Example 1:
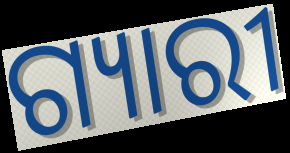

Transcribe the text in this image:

ଗ୍ୟାରୀ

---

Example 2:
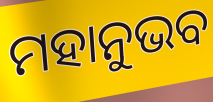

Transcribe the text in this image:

ମହାନୁଭବ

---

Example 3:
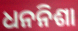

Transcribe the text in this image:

ଧନନିଶା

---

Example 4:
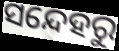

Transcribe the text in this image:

ସନ୍ଦେହରୁ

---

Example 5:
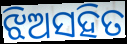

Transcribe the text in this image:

ଝିଅସହିତ